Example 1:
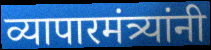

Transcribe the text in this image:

व्यापारमंत्र्यांनी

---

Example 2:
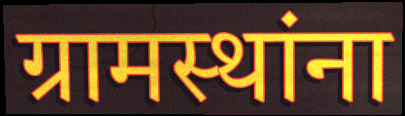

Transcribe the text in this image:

ग्रामस्थांना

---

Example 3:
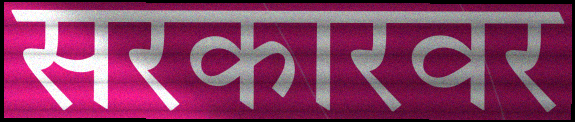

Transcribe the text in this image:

सरकारवर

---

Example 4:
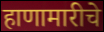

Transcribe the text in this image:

हाणामारीचे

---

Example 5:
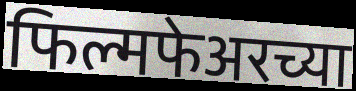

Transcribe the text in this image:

फिल्मफेअरच्या